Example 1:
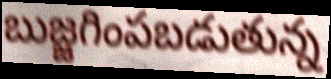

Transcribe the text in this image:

బుజ్జగింపబడుతున్న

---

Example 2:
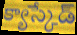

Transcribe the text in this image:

క్యాస్కేడ్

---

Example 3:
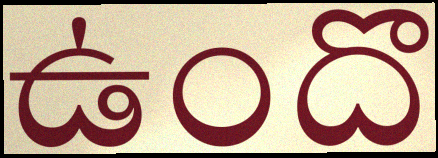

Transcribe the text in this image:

ఉందొ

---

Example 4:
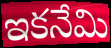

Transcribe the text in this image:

ఇకనేమి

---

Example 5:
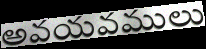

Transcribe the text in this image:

అవయవములు